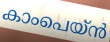
കാംപെയ്ൻ